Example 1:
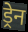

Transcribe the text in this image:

ड्रेन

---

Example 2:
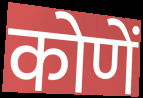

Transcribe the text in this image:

कोणें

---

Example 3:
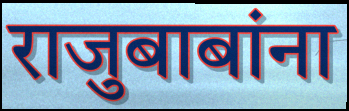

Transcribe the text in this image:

राजुबाबांना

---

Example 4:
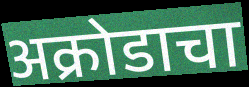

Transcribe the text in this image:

अक्रोडाचा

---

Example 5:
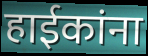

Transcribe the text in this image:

हाईकांना